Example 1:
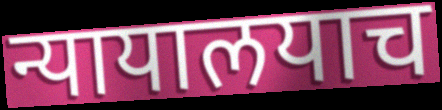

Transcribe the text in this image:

न्यायालयाच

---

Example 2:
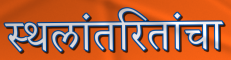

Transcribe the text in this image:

स्थलांतरितांचा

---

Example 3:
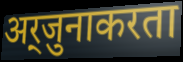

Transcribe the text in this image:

अर्जुनाकरता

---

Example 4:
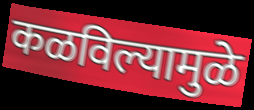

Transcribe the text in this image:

कळविल्यामुळे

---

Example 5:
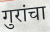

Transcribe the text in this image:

गुरांचा